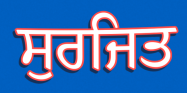
ਸੁਰਜਿਤ